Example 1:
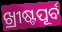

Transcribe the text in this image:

ଖ୍ରୀଷ୍ଟପୂର୍ବ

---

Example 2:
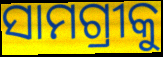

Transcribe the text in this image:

ସାମଗ୍ରୀକୁ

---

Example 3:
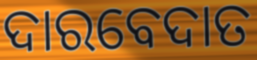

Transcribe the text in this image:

ଦାରବେଦାତ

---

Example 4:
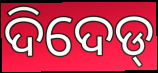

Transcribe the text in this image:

ଦିଦେଡ୍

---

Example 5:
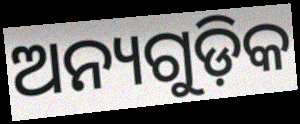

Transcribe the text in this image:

ଅନ୍ୟଗୁଡ଼ିକ